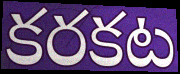
కరకట